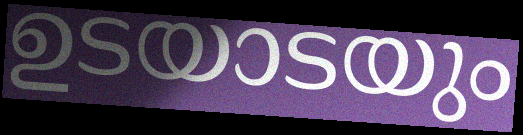
ഉടയാടയും